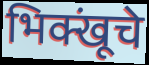
भिक्खूंचे